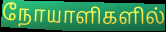
நோயாளிகளில்